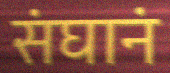
संघानं